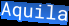
Aquila